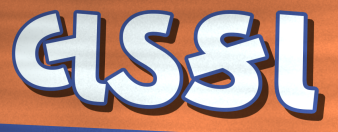
લડકા